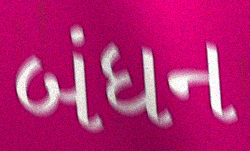
બંધન